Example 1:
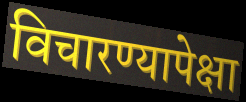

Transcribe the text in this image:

विचारण्यापेक्षा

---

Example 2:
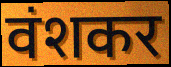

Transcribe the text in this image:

वंशकर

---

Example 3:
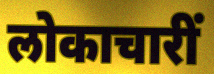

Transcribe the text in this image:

लोकाचारीं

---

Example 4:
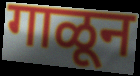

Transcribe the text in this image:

गाळून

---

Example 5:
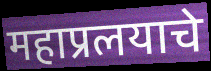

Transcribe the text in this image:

महाप्रलयाचे